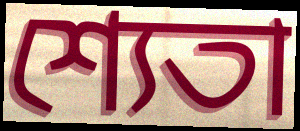
শ্যেতা